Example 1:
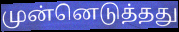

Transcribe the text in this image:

முன்னெடுத்தது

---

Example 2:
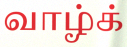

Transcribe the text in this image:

வாழ்க்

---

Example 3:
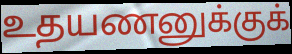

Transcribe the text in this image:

உதயணனுக்குக்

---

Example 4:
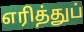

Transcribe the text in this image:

எரித்துப்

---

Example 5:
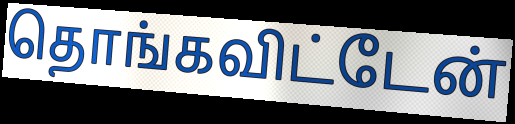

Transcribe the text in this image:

தொங்கவிட்டேன்